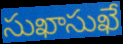
సుఖాసుఖే